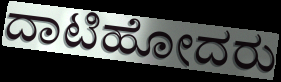
ದಾಟಿಹೋದರು